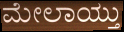
ಮೇಲಾಯ್ತು